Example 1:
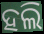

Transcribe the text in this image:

ହଲି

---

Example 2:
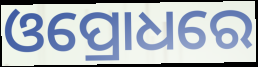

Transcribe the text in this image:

ଓପ୍ରୋଧରେ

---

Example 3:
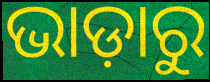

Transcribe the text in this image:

ଭାଡ଼ାରୁ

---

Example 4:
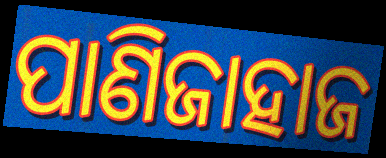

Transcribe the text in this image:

ପାଣିଜାହାଜ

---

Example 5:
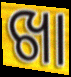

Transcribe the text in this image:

ଖା